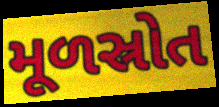
મૂળસ્રોત